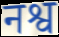
नश्व